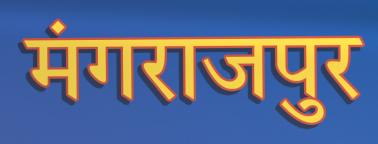
मंगराजपुर